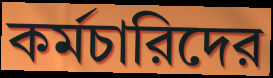
কর্মচারিদের